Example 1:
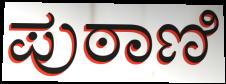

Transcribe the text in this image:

ಪುಠಾಣಿ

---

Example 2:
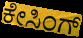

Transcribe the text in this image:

ಕೇಸಿಂಗ್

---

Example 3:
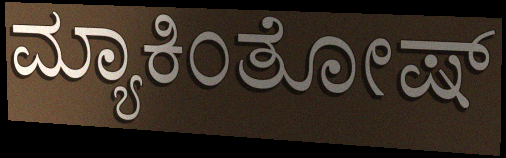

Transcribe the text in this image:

ಮ್ಯಾಕಿಂತೋಷ್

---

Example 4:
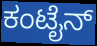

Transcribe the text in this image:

ಕಂಟೈನ್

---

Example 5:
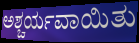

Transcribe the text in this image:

ಅಶ್ಚರ್ಯವಾಯಿತು